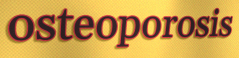
osteoporosis